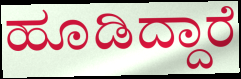
ಹೂಡಿದ್ದಾರೆ